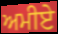
ਅਮੀਏ